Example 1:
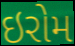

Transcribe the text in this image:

ઇરોમ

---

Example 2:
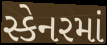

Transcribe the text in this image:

સ્કેનરમાં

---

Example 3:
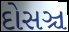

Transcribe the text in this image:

દોસઞ્ચ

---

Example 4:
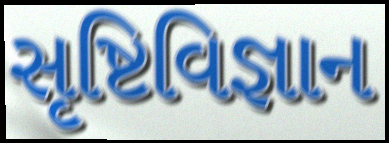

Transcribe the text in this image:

સૃષ્ટિવિજ્ઞાન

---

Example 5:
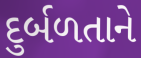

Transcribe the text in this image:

દુર્બળતાને